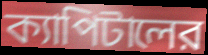
ক্যাপিটালের